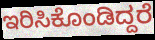
ಇರಿಸಿಕೊಂಡಿದ್ದರೆ